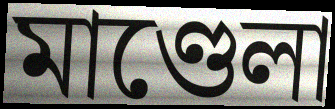
মাণ্ডেলা